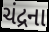
ચંદ્રના